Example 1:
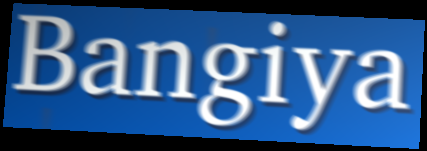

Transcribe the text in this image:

Bangiya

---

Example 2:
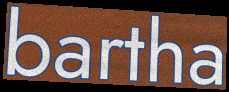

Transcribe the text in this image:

bartha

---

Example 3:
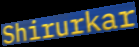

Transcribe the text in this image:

Shirurkar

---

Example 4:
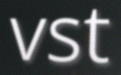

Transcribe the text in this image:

vst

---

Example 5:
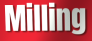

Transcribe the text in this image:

Milling